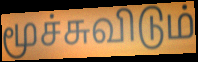
மூச்சுவிடும்